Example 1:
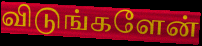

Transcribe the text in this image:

விடுங்களேன்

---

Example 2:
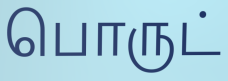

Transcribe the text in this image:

பொருட்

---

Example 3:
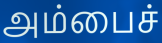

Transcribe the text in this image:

அம்பைச்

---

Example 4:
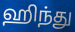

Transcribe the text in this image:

ஹிந்து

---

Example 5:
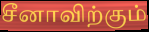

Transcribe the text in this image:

சீனாவிற்கும்